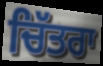
ਚਿੱਤਰਾ